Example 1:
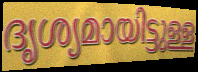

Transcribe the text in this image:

ദൃശ്യമായിട്ടുള്ള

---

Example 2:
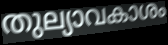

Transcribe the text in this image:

തുല്യാവകാശം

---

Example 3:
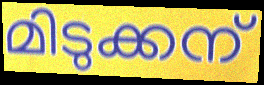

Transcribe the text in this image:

മിടുക്കന്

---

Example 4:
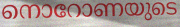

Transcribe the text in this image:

നൊറോണയുടെ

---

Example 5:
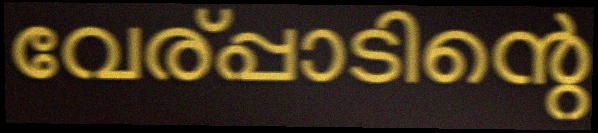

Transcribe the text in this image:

വേര്പ്പാടിന്റെ